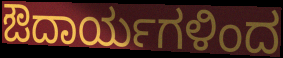
ಔದಾರ್ಯಗಳಿಂದ